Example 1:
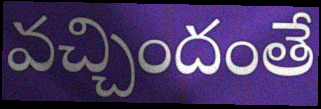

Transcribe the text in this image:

వచ్చిందంతే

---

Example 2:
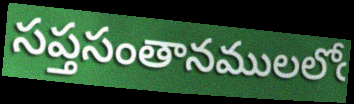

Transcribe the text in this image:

సప్తసంతానములలోఁ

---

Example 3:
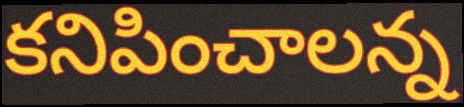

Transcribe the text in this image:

కనిపించాలన్న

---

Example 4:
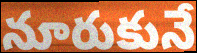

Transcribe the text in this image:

నూరుకునే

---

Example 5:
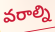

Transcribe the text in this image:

వరాల్ని